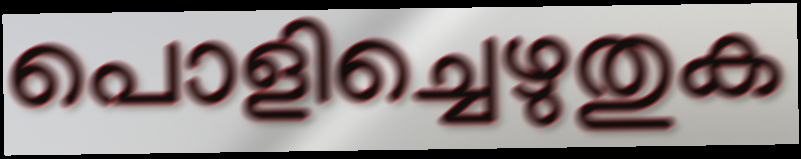
പൊളിച്ചെഴുതുക